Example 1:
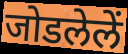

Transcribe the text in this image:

जोडलेलें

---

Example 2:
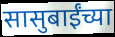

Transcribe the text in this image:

सासुबाईंच्या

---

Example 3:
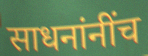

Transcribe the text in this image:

साधनांनींच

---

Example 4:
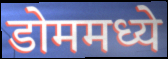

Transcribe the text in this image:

डोममध्ये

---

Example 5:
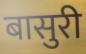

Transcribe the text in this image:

बासुरी